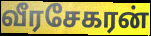
வீரசேகரன்